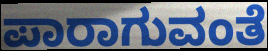
ಪಾರಾಗುವಂತೆ